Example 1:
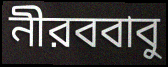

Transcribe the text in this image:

নীরববাবু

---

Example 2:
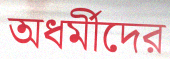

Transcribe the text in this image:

অধর্মীদের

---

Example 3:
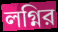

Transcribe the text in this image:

লগ্নির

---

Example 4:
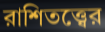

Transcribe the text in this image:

রাশিতত্ত্বের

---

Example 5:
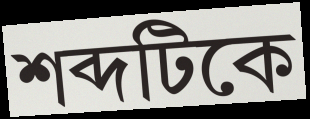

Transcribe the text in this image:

শব্দটিকে